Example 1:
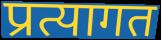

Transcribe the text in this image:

प्रत्यागत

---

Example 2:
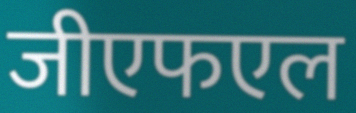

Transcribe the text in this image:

जीएफएल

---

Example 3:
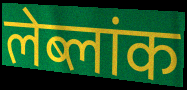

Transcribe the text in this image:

लेब्लांक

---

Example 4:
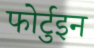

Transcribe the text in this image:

फोर्टुइन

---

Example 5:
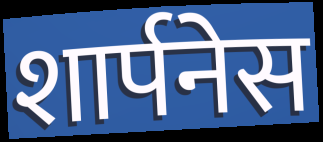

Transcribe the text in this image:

शार्पनेस